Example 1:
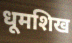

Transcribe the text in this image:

धूमशिख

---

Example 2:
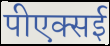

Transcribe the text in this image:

पीएक्सई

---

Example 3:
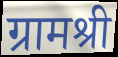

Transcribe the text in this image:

ग्रामश्री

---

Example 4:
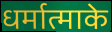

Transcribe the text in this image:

धर्मात्माके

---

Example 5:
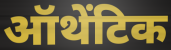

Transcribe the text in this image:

ऑथेंटिक